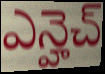
ఎన్హెచ్